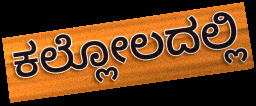
ಕಲ್ಲೋಲದಲ್ಲಿ